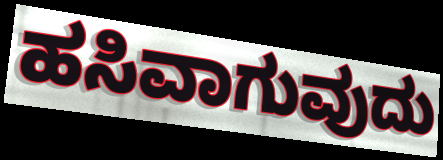
ಹಸಿವಾಗುವುದು